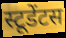
स्टूडेंटस